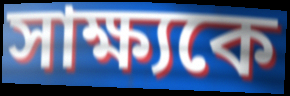
সাক্ষ্যকে